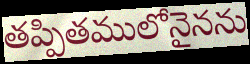
తప్పితములోనైనను